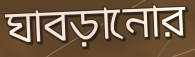
ঘাবড়ানোর